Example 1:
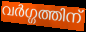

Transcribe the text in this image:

വർഗ്ഗത്തിന്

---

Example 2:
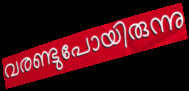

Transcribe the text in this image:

വരണ്ടുപോയിരുന്നു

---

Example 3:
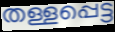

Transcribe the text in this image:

തള്ളപ്പെട്ട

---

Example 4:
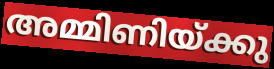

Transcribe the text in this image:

അമ്മിണിയ്ക്കു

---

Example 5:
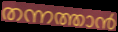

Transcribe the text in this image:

തന്നത്താൻ